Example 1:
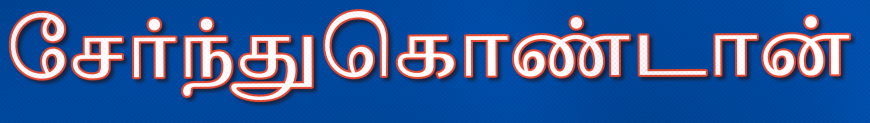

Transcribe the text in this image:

சேர்ந்துகொண்டான்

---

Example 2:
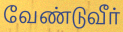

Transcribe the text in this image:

வேண்டுவீர்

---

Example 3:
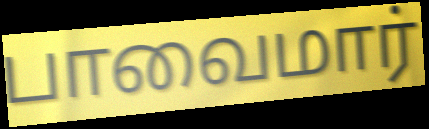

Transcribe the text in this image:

பாவைமார்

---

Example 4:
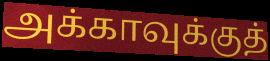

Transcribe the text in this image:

அக்காவுக்குத்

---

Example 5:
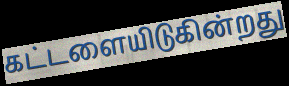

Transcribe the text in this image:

கட்டளையிடுகின்றது